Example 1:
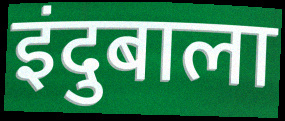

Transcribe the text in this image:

इंदुबाला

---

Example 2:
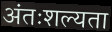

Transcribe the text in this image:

अंतःशल्यता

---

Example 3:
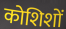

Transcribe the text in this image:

कोशिशों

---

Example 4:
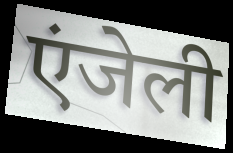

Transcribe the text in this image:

एंजेली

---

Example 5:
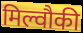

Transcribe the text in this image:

मिल्वौकी